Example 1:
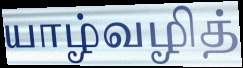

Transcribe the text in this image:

யாழ்வழித்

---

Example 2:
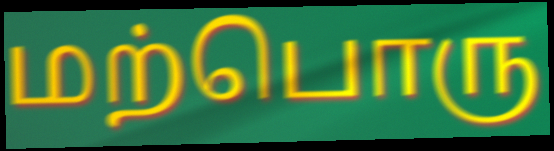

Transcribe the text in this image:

மற்பொரு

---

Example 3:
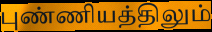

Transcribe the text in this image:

புண்ணியத்திலும்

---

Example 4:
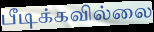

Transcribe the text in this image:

பீடிக்கவில்லை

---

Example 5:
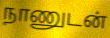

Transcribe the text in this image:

நாணுடன்